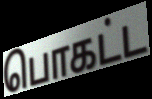
பொகட்ட